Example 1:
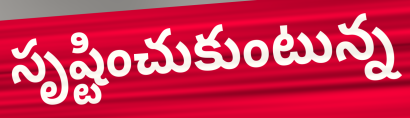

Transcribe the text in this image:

సృష్టించుకుంటున్న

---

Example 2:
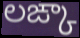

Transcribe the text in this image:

లఙ్కా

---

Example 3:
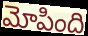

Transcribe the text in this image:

మోపింది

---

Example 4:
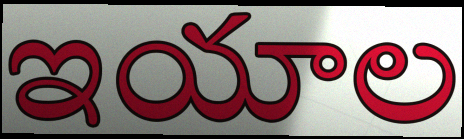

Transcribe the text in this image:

ఇయాల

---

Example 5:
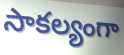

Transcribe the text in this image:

సాకల్యంగా